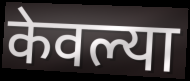
केवल्या